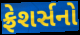
ફ્રેશર્સનો